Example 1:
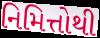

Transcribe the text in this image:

નિમિત્તોથી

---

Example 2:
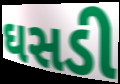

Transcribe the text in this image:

ઘસડી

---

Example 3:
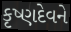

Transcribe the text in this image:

કૃષ્ણદેવને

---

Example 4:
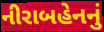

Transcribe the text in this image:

નીરાબહેનનું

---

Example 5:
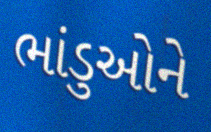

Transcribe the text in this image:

ભાંડુઓને